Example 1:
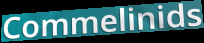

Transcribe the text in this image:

Commelinids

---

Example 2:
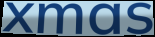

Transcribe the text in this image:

xmas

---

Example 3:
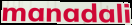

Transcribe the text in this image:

manadali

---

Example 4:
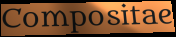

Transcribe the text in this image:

Compositae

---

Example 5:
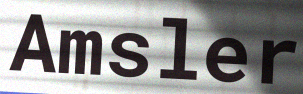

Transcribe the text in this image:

Amsler